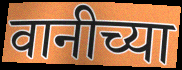
वानीच्या